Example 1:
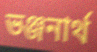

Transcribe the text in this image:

ভঞ্জনার্থ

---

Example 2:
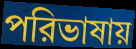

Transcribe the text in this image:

পরিভাষায়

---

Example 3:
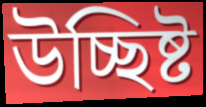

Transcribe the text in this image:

উচ্ছিষ্ট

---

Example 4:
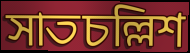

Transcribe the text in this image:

সাতচল্লিশ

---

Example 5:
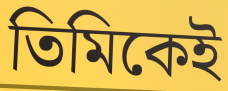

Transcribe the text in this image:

তিমিকেই